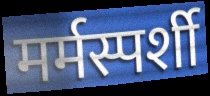
मर्मस्पर्शी